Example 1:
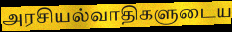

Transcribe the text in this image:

அரசியல்வாதிகளுடைய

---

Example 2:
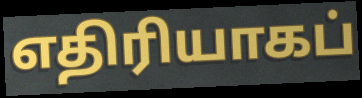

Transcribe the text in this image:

எதிரியாகப்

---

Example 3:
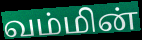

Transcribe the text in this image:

வம்மின்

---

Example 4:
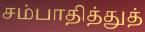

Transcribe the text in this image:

சம்பாதித்துத்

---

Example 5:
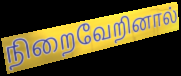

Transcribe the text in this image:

நிறைவேறினால்